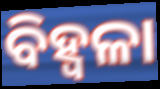
ବିହ୍ଵଳା